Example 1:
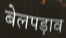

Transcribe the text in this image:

बेलपड़ाव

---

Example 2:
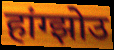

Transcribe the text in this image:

हांग्झोउ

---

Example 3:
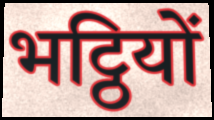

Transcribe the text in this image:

भट्ठियों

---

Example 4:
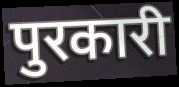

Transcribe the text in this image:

पुरकारी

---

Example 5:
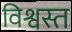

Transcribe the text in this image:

विश्वस्त